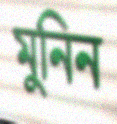
মুনিন